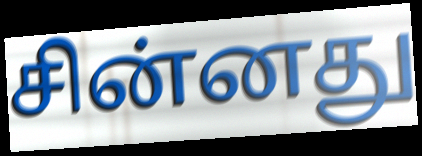
சின்னது